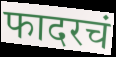
फादरचं